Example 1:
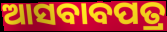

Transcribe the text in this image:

ଆସବାବପତ୍ର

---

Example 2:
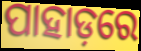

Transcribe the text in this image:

ପାହାଡ଼ରେ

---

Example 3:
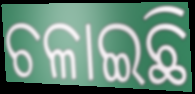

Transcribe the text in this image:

ଚଳାଇଛି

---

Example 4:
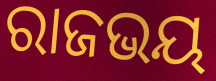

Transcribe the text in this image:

ରାଜଭୟ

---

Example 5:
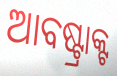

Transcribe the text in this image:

ଆବଷ୍ଟ୍ରାକ୍ଟ